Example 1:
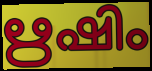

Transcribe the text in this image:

ഋഷിം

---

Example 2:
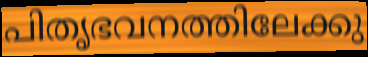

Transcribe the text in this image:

പിതൃഭവനത്തിലേക്കു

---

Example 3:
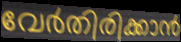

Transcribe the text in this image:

വേർതിരിക്കാൻ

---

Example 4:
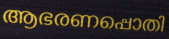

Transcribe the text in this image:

ആഭരണപ്പൊതി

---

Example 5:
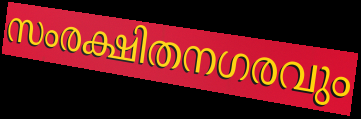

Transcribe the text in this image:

സംരക്ഷിതനഗരവും